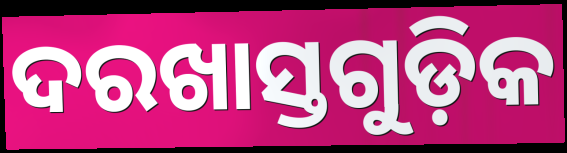
ଦରଖାସ୍ତଗୁଡ଼ିକ